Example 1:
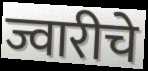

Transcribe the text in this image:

ज्वारीचे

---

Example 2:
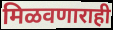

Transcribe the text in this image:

मिळवणाराही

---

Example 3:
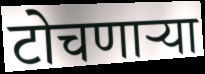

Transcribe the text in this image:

टोचणाऱ्या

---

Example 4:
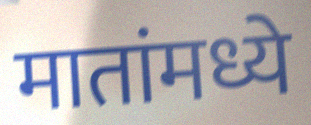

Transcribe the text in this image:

मातांमध्ये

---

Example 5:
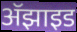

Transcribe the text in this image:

ॲझाइड